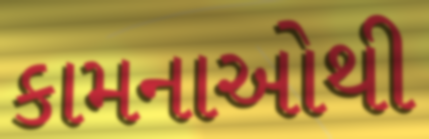
કામનાઓથી